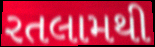
રતલામથી